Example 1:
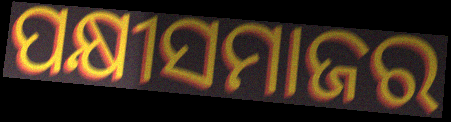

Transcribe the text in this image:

ପକ୍ଷୀସମାଜର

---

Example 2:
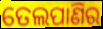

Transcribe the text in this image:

ତେଲପାଣିର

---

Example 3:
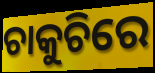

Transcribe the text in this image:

ଚାକୁଚିରେ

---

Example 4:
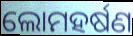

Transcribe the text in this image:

ଲୋମହର୍ଷଣ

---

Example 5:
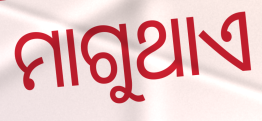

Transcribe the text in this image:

ମାଗୁଥାଏ